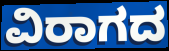
ವಿರಾಗದ